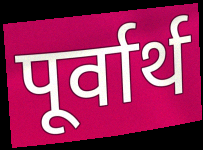
पूर्वार्थ